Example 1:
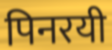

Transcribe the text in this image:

पिनरयी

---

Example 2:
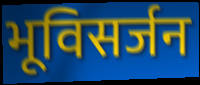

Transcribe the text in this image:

भूविसर्जन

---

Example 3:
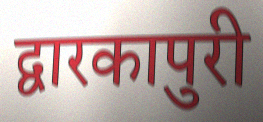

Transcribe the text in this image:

द्वारकापुरी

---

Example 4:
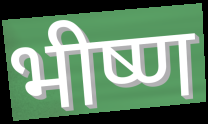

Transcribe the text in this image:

भीष्ण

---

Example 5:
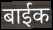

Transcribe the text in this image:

बाईक